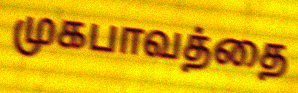
முகபாவத்தை